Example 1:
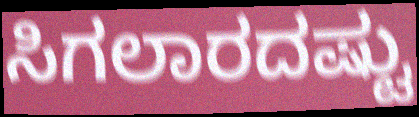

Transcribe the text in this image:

ಸಿಗಲಾರದಷ್ಟು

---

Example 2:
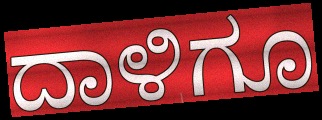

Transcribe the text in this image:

ದಾಳಿಗೂ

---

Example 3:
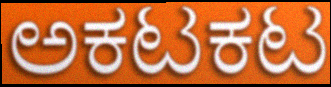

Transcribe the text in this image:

ಅಕಟಕಟ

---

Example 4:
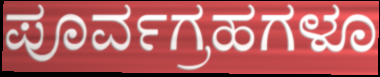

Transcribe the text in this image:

ಪೂರ್ವಗ್ರಹಗಳೂ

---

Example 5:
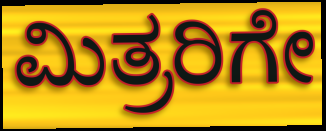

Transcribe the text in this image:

ಮಿತ್ರರಿಗೇ